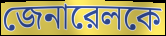
জেনারেলকে